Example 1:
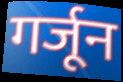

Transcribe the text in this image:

गर्जून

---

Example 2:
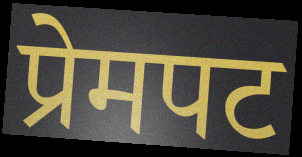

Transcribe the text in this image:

प्रेमपट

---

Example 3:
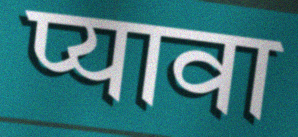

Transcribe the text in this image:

प्यावा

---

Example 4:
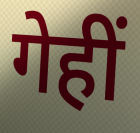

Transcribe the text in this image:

गेहीं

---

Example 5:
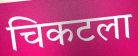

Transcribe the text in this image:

चिकटला